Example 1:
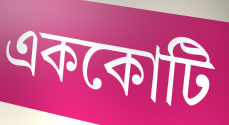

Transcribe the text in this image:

এককোটি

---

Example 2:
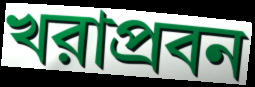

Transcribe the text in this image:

খরাপ্রবন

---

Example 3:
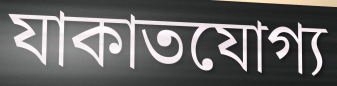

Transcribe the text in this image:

যাকাতযোগ্য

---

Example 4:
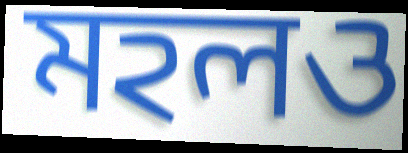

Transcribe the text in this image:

মহলও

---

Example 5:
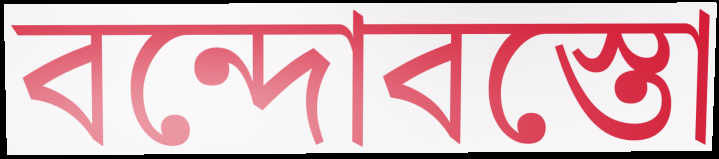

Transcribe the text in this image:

বন্দোবস্তো